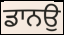
ਡਾਨਉ